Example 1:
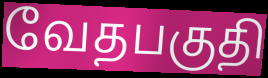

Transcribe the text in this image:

வேதபகுதி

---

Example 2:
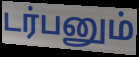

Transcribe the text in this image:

டர்பனும்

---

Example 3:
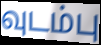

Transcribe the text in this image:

வுடம்பு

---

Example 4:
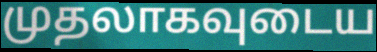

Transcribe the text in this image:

முதலாகவுடைய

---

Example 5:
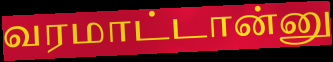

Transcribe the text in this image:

வரமாட்டான்னு